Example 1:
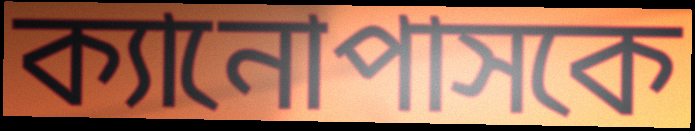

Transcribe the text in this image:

ক্যানোপাসকে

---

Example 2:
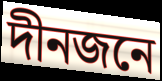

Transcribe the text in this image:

দীনজনে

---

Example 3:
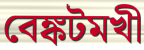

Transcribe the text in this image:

বেঙ্কটমখী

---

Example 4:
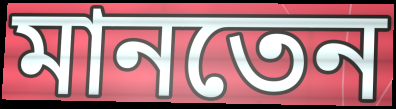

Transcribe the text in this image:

মানতেন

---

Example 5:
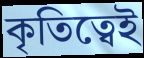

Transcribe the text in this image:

কৃতিত্বেই